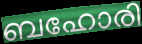
ബഹോരി